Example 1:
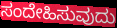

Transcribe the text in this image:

ಸಂದೇಹಿಸುವುದು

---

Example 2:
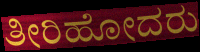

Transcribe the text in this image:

ತೀರಿಹೋದರು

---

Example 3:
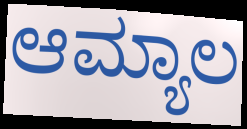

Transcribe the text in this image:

ಆಮ್ಯಾಲ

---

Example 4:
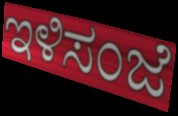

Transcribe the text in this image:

ಇಳಿಸಂಜೆ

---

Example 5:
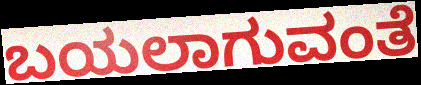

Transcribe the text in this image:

ಬಯಲಾಗುವಂತೆ